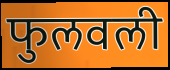
फुलवली